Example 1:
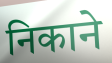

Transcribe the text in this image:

निकाने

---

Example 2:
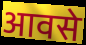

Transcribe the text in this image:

आवसे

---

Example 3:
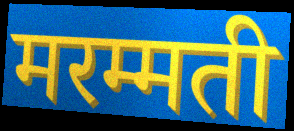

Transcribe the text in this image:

मरम्मती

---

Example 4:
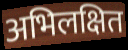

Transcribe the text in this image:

अभिलक्षित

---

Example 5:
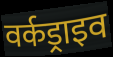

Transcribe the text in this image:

वर्कड्राइव